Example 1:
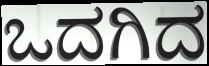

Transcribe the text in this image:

ಒದಗಿದ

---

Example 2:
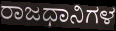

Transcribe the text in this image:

ರಾಜಧಾನಿಗಳ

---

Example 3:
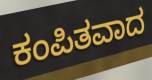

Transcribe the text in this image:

ಕಂಪಿತವಾದ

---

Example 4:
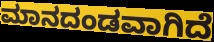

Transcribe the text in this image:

ಮಾನದಂಡವಾಗಿದೆ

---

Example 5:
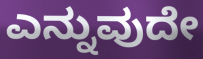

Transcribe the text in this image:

ಎನ್ನುವುದೇ